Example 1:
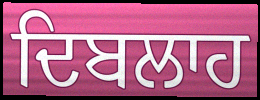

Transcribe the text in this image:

ਦਿਬਲਾਹ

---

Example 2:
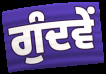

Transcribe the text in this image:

ਗੁੰਦਵੇਂ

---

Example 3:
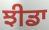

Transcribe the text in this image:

ਝੀਡਾ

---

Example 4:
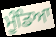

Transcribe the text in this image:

ਮੂੰਡਿਆ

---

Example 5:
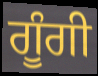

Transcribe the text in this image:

ਗੂੰਗੀ